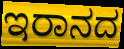
ಇರಾನದ